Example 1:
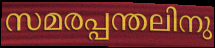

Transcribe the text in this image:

സമരപ്പന്തലിനു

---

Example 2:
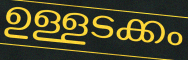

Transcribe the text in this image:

ഉള്ളടക്കം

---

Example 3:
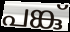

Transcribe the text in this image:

പങ്കു്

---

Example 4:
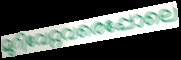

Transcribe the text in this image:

മുറിവേറ്റവരെപ്പോലെ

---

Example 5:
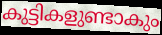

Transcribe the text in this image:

കുട്ടികളുണ്ടാകും